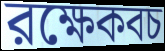
রক্ষেকবচ